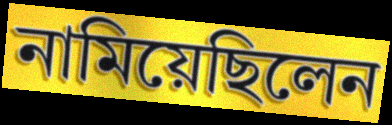
নামিয়েছিলেন